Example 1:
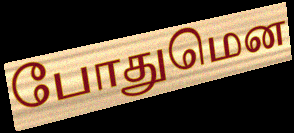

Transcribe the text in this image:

போதுமென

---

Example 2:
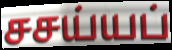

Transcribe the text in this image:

சசய்யப்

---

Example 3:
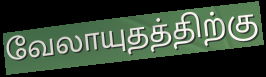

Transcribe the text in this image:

வேலாயுதத்திற்கு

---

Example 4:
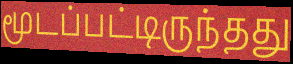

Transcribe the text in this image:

மூடப்பட்டிருந்தது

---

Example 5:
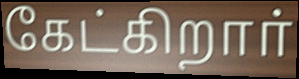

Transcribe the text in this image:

கேட்கிறார்